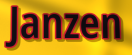
Janzen